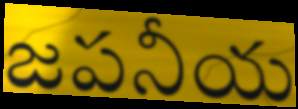
జపనీయ